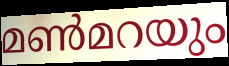
മൺമറയും